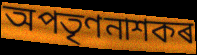
অপতৃণনাশকৰ